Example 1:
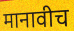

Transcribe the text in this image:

मानावीच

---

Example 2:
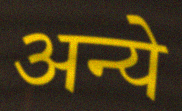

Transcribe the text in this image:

अन्ये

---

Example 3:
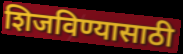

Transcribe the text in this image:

शिजविण्यासाठी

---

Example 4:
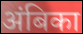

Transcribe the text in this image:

अंबिका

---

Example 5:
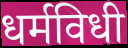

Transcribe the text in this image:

धर्मविधी